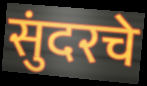
सुंदरचे